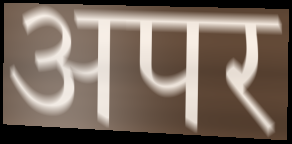
अपर